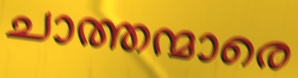
ചാത്തന്മാരെ